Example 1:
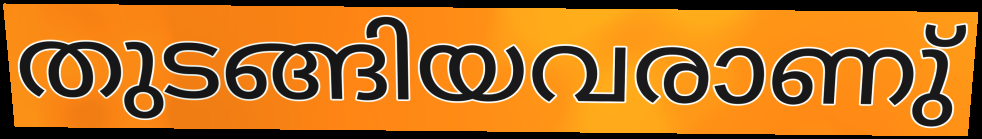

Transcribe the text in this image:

തുടങ്ങിയവരാണു്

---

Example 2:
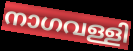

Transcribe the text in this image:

നാഗവള്ളി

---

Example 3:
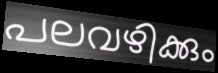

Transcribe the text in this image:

പലവഴിക്കും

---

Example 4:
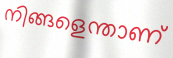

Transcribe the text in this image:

നിങ്ങളെന്താണ്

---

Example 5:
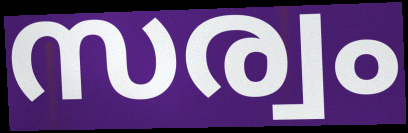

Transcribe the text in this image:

സര്വം